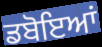
ਡਬੋਇਆਂ